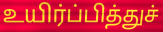
உயிர்ப்பித்துச்